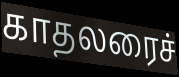
காதலரைச்